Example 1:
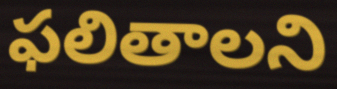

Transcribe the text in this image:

ఫలితాలని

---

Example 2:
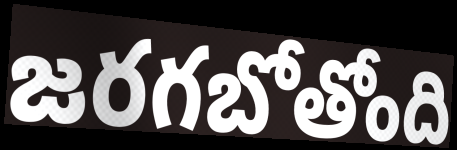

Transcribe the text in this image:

జరగబోతోంది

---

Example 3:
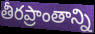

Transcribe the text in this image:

తీరప్రాంతాన్ని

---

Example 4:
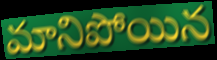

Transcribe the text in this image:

మానిపోయిన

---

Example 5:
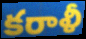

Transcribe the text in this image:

కరాళీ